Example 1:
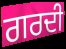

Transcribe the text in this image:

ਗਰਦੀ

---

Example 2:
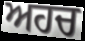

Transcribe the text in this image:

ਅਹਚ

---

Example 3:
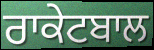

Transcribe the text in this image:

ਰਾਕੇਟਬਾਲ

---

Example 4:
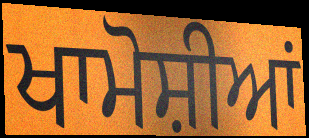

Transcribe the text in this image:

ਖਾਮੋਸ਼ੀਆਂ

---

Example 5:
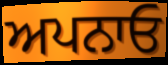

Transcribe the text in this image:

ਅਪਨਾਓ